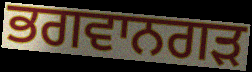
ਭਗਵਾਨਗੜ